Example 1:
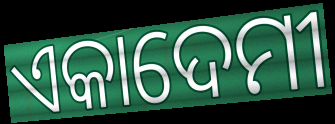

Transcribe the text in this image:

ଏକାଦେମୀ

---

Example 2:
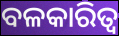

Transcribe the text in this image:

ବଳକାରିତ୍ୱ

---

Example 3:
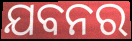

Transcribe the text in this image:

ଯବନର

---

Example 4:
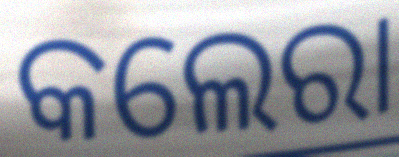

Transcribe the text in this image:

କଲେରା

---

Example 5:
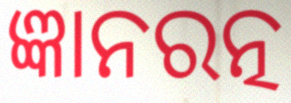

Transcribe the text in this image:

ଜ୍ଞାନରତ୍ନ